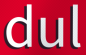
dul